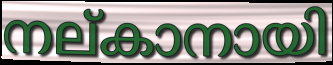
നല്കാനായി